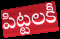
పిట్టలకీ